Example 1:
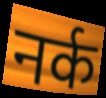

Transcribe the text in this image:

नर्क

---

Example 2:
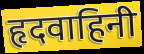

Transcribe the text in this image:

हृदवाहिनी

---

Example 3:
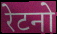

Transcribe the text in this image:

रेटनो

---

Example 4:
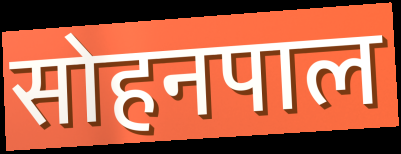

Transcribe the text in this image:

सोहनपाल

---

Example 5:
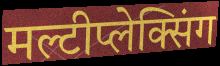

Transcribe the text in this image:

मल्टीप्लेक्सिंग